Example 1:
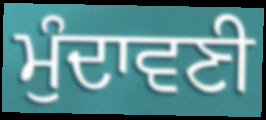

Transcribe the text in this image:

ਮੁੰਦਾਵਣੀ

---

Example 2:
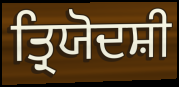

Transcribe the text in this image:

ਤ੍ਰਿਯੋਦਸ਼ੀ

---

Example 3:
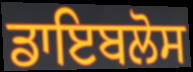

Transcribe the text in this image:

ਡਾਇਬਲੋਸ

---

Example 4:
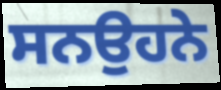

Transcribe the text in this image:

ਸਨਉਹਨੇ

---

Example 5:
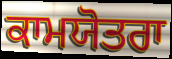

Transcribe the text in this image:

ਕਾਮਯੋਤਰਾ